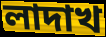
লাদাখ